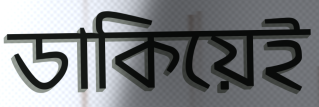
ডাকিয়েই